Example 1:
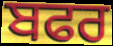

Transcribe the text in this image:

ਬਫਰ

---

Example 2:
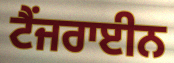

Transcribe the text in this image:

ਟੈਂਜਰਾਈਨ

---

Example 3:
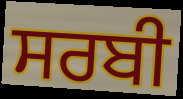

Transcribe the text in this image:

ਸਰਬੀ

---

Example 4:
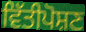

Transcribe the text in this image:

ਵਿੱਤੀਪੋਸ਼ਣ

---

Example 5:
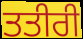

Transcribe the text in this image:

ਤਤੀਰੀ